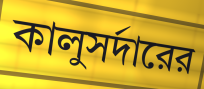
কালুসর্দারের